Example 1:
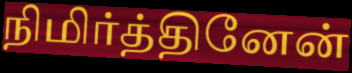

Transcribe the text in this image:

நிமிர்த்தினேன்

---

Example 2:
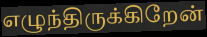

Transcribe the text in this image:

எழுந்திருக்கிறேன்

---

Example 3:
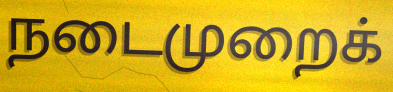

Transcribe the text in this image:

நடைமுறைக்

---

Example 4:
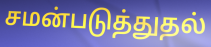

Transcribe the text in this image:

சமன்படுத்துதல்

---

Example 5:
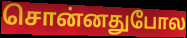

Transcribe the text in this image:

சொன்னதுபோல